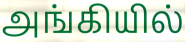
அங்கியில்